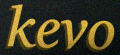
kevo